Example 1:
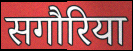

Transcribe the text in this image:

सगौरिया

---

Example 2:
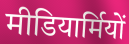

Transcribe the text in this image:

मीडियार्मियों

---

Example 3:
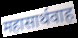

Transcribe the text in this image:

महासार्थवाह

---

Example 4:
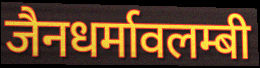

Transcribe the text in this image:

जैनधर्मावलम्बी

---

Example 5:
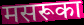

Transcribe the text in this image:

मसरूका